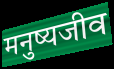
मनुष्यजीव